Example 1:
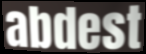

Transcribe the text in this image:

abdest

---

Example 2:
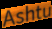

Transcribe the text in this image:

Ashtu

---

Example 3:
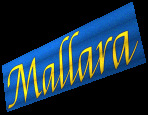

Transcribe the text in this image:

Mallara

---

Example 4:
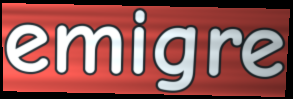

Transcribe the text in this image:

emigre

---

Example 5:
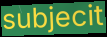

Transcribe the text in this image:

subjecit